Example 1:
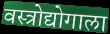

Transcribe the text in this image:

वस्त्रोद्योगाला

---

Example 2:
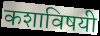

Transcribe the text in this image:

कशाविषयी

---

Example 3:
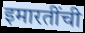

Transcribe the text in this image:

इमारतींची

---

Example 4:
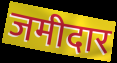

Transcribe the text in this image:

जमीदार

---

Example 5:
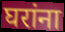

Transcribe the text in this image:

घरांना